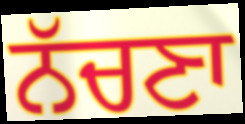
ਨੱਚਣਾ